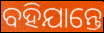
ବହିଯାନ୍ତେ